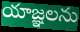
యాజ్ఞలను